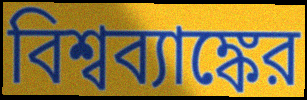
বিশ্বব্যাঙ্কের